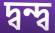
দ্বন্দ্ব